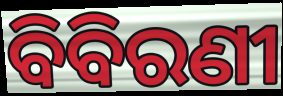
ବିବିରଣୀ